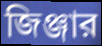
জিঞ্জার